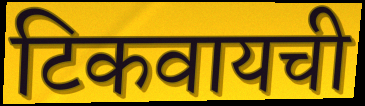
टिकवायची